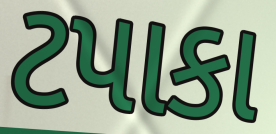
ટપાકા